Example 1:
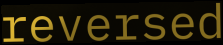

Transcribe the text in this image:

reversed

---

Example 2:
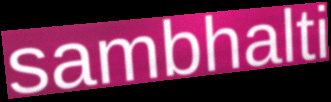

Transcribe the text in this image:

sambhalti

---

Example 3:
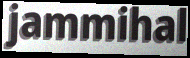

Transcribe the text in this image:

jammihal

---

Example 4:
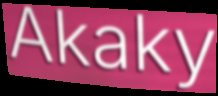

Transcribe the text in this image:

Akaky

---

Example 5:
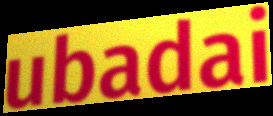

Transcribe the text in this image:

ubadai